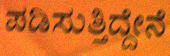
ಪಡಿಸುತ್ತಿದ್ದೇನೆ